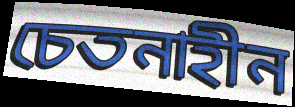
চেতনাহীন